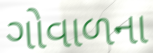
ગોવાળના